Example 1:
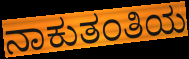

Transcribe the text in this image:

ನಾಕುತಂತಿಯ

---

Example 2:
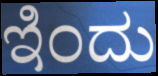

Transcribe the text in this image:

ಇಿಂದು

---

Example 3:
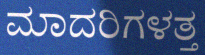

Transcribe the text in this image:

ಮಾದರಿಗಳತ್ತ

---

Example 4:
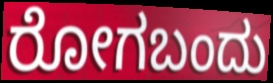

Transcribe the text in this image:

ರೋಗಬಂದು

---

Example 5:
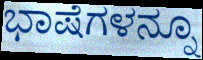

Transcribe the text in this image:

ಭಾಷೆಗಳನ್ನೂ